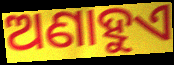
ଅଣାହୁଏ